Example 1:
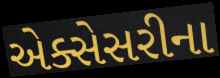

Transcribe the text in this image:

એક્સેસરીના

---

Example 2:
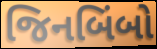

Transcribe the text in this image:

જિનબિંબો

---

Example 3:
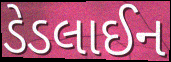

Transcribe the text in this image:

ડેડલાઈન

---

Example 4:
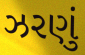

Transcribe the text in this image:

ઝરણું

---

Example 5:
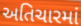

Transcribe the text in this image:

અતિચારમાં